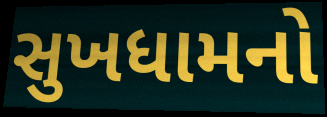
સુખધામનો